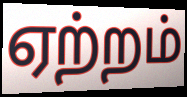
ஏற்றம்